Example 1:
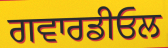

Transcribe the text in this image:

ਗਵਾਰਡੀਓਲ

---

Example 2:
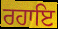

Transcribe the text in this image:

ਰਹਾਇ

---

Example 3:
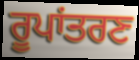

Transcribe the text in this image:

ਰੂਪਾਂਤਰਣ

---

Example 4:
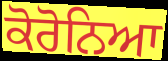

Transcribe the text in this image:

ਕੋਰੋਨਿਆ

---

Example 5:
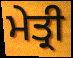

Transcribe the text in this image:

ਮੇਤ੍ਰੀ